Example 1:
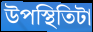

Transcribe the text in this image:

উপস্থিতিটা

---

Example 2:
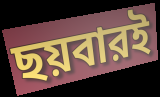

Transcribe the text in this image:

ছয়বারই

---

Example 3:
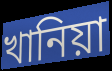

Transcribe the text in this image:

খানিয়া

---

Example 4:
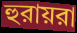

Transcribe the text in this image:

হুরায়রা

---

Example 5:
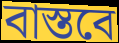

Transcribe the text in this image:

বাস্তবে